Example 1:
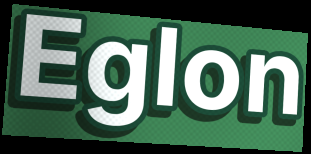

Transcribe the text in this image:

Eglon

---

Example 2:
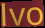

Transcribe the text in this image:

Ivo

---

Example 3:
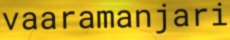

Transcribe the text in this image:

vaaramanjari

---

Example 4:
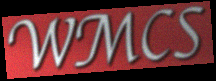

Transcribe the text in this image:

WMCS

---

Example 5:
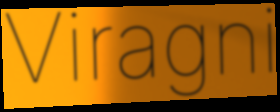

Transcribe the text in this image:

Viragni